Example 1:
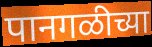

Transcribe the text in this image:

पानगळीच्या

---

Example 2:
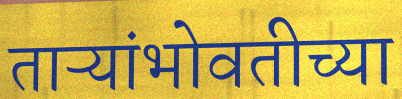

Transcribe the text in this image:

ताऱ्यांभोवतीच्या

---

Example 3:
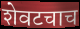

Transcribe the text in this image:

शेवटचाच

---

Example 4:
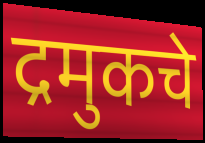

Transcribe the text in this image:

द्रमुकचे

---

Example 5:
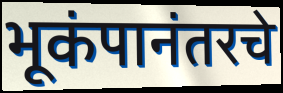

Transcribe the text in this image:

भूकंपानंतरचे